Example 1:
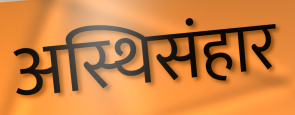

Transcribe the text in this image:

अस्थिसंहार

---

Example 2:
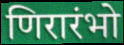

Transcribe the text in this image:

णिरारंभो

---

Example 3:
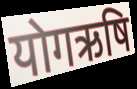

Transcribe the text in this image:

योगऋषि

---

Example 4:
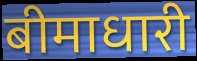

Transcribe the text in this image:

बीमाधारी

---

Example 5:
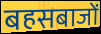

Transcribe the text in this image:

बहसबाजों